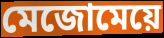
মেজোমেয়ে